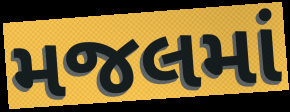
મજલમાં